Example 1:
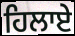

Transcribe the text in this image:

ਹਿਲਾਏ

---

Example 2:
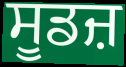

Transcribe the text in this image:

ਸੂਡਜ਼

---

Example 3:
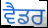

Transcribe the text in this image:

ਵੈਡਰ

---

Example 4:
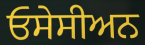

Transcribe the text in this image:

ਓਸੇਸੀਅਨ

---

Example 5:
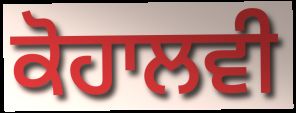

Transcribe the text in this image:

ਕੋਹਾਲਵੀ